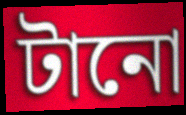
টানো